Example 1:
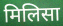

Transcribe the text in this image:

मिलिसा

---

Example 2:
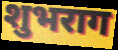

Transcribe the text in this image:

शुभराग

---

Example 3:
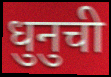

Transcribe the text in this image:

धुनुची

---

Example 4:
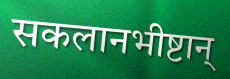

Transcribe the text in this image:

सकलानभीष्टान्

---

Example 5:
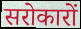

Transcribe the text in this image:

सरोकारों